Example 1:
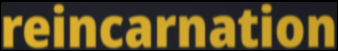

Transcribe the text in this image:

reincarnation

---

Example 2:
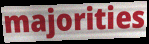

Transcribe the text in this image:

majorities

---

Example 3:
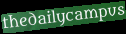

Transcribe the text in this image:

thedailycampus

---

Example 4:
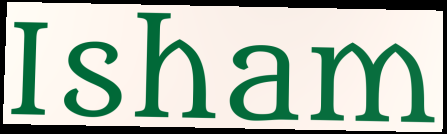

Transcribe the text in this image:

Isham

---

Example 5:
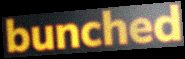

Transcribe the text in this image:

bunched